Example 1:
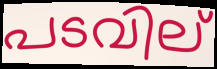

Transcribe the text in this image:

പടവില്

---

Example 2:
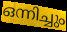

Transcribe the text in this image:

ഒന്നിച്ചും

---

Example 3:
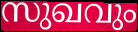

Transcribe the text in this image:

സുഖവും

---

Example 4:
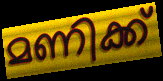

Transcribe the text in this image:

മണിക്ക്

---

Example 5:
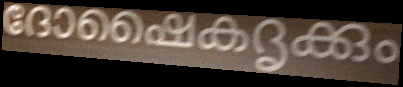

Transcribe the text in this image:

ദോഷൈകദൃക്കും